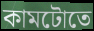
কামটোতে